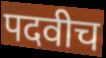
पदवीच